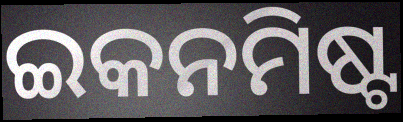
ଇକନମିଷ୍ଟ